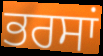
ਭਰਸਾਂ